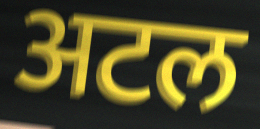
अटल